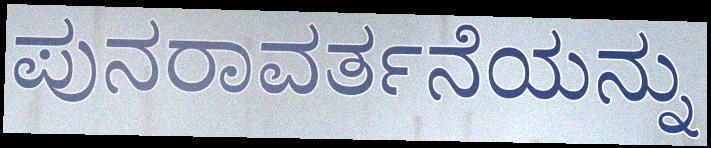
ಪುನರಾವರ್ತನೆಯನ್ನು